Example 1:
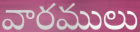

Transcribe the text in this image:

వారములు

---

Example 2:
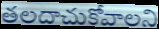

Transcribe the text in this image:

తలదాచుకోవాలని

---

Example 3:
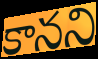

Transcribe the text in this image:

కానని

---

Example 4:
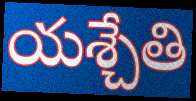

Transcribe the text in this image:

యశ్చేతి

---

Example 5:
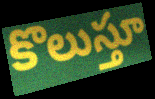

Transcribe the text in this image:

కొలుస్తూ